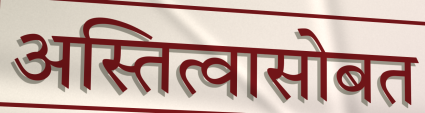
अस्तित्वासोबत